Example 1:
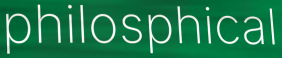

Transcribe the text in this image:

philosphical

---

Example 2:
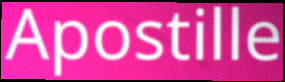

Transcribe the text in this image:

Apostille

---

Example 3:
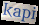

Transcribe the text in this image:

kapi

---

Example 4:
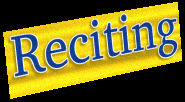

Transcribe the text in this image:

Reciting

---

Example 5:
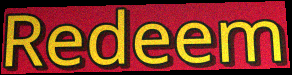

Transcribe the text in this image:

Redeem